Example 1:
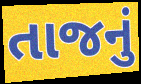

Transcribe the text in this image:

તાજનું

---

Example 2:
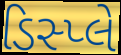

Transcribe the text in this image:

ડિસ્પ્લે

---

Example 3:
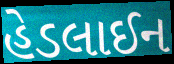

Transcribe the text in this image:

હેડલાઈન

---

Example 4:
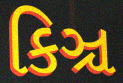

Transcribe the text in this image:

કિઞ્ચ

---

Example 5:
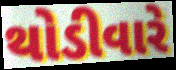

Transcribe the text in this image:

થોડીવારે